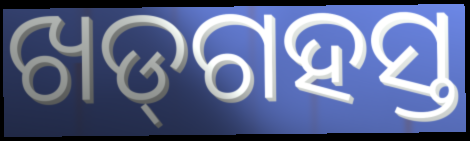
ଖଡ୍‌ଗହସ୍ତ